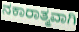
ನಕಾರಾತ್ಮವಾಗಿ